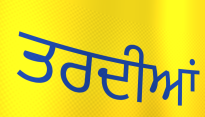
ਤਰਦੀਆਂ